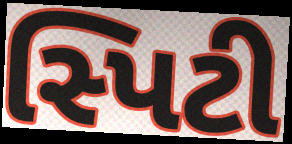
સ્પિટી